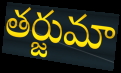
తర్జుమా